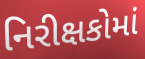
નિરીક્ષકોમાં